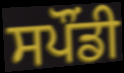
ਸਪੌਂਡੀ